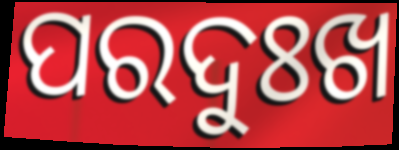
ପରଦୁଃଖ